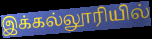
இக்கல்லூரியில்